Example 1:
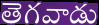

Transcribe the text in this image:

తెగవాడు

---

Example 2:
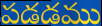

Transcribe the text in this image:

పడడము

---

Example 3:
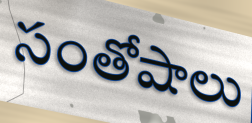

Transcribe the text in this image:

సంతోషాలు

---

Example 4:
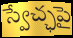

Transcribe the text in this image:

స్వేచ్ఛపై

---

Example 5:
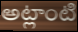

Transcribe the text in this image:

అట్లాంటి